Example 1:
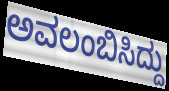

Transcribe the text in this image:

ಅವಲಂಬಿಸಿದ್ದು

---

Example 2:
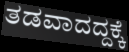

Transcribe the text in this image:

ತಡವಾದದ್ದಕ್ಕೆ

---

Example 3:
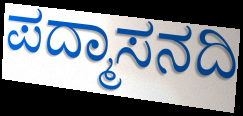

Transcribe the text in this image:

ಪದ್ಮಾಸನದಿ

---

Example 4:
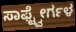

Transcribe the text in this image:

ಸಾಫ್ಟ್ವೇರ್ಗಳ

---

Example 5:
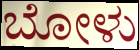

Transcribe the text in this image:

ಬೋಳು